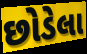
છોડેલા